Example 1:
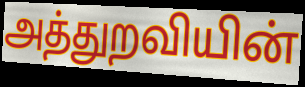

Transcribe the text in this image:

அத்துறவியின்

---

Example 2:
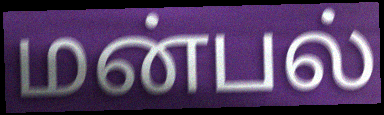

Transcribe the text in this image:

மன்பல்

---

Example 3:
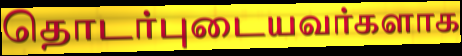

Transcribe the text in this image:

தொடர்புடையவர்களாக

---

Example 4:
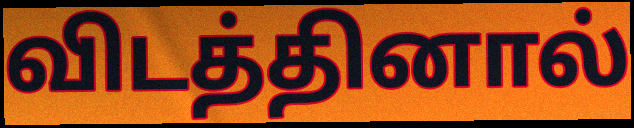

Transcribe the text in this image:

விடத்தினால்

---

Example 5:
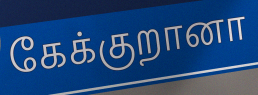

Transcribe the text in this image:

கேக்குறானா